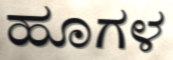
ಹೂಗಳ